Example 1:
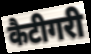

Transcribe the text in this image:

कैटीगरी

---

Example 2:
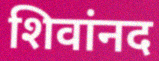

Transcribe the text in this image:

शिवांनद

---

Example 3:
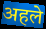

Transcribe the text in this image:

अहले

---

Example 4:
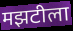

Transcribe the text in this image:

मझटीला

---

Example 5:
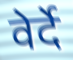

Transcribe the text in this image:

वेर्दे